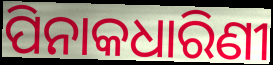
ପିନାକଧାରିଣୀ